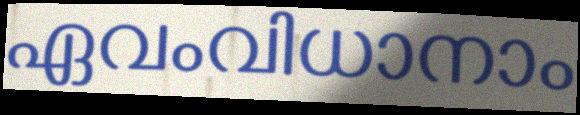
ഏവംവിധാനാം